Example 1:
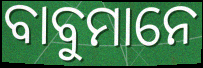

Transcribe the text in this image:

ବାବୁମାନେ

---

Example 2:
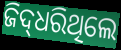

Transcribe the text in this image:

ଜିଦ୍‌ଧରିଥିଲେ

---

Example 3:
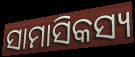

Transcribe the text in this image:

ସାମାସିକସ୍ୟ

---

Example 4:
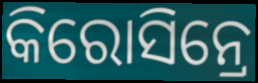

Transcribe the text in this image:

କିରୋସିନ୍ରେ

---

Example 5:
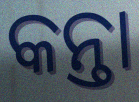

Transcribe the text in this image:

କନ୍ତା